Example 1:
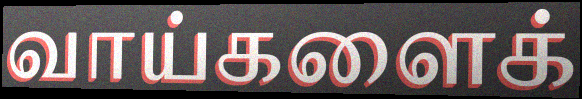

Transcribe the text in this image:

வாய்களைக்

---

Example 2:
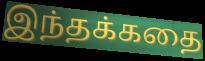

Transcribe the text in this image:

இந்தக்கதை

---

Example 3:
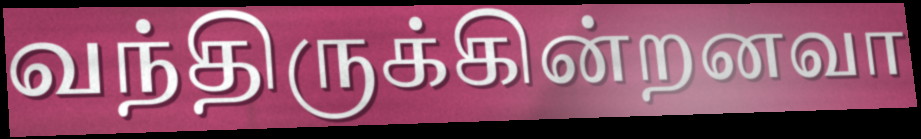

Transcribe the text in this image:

வந்திருக்கின்றனவா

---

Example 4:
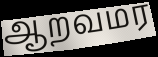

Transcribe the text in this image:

ஆறவமர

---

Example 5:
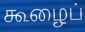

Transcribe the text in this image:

கூழைப்